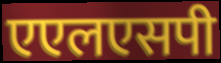
एएलएसपी